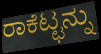
ರಾಕೆಟ್ಟನ್ನು